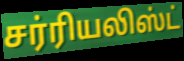
சர்ரியலிஸ்ட்